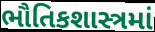
ભૌતિકશાસ્ત્રમાં